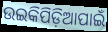
ଉଇକିପିଡ଼ିଆପାଇଁ